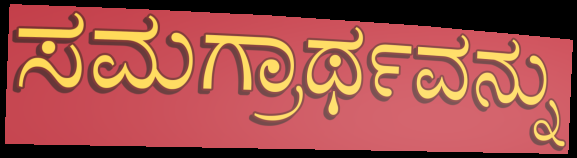
ಸಮಗ್ರಾರ್ಥವನ್ನು